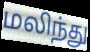
மலிந்து